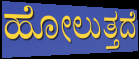
ಹೋಲುತ್ತದೆ